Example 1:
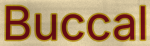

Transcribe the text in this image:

Buccal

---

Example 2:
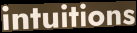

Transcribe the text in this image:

intuitions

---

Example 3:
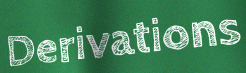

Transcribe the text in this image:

Derivations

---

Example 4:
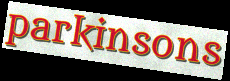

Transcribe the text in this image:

parkinsons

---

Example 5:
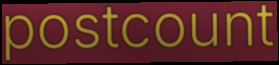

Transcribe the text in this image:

postcount